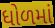
ધોળમાં